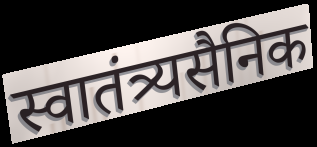
स्वातंत्र्यसैनिक